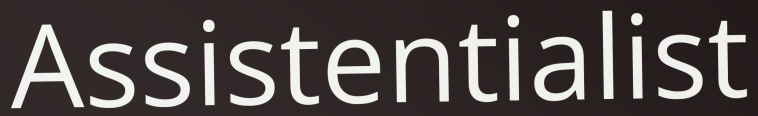
Assistentialist